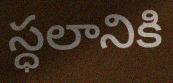
స్ధలానికి